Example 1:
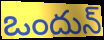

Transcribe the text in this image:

ఒందున్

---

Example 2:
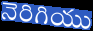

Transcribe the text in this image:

నెరిగియు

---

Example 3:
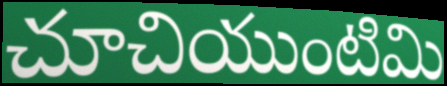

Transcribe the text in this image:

చూచియుంటిమి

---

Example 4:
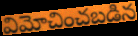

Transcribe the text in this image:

విమోచించబడిన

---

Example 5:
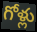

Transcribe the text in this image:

గోళ్లు